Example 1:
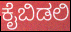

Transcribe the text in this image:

ಕೈಬಿಡಲಿ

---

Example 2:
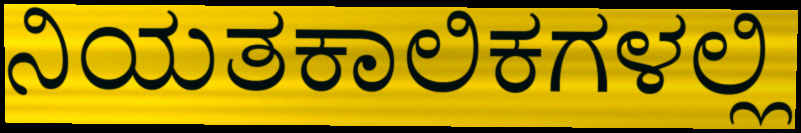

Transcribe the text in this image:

ನಿಯತಕಾಲಿಕಗಳಲ್ಲಿ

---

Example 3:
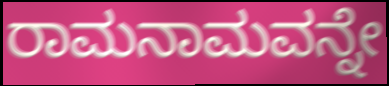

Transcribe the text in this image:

ರಾಮನಾಮವನ್ನೇ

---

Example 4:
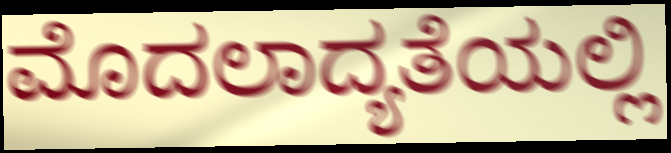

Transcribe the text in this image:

ಮೊದಲಾದ್ಯತೆಯಲ್ಲಿ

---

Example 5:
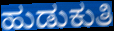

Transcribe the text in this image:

ಹುಡುಕುತಿ